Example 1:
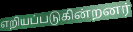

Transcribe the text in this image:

எறியப்படுகின்றனர்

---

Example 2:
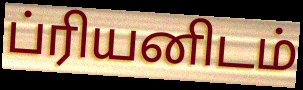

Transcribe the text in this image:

ப்ரியனிடம்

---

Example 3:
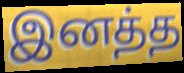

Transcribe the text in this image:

இனத்த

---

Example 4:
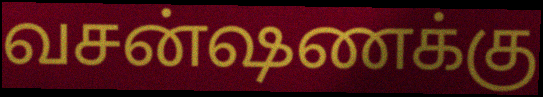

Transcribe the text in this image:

வசன்ஷணக்கு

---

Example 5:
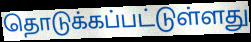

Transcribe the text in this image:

தொடுக்கப்பட்டுள்ளது